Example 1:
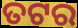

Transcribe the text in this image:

ତଟର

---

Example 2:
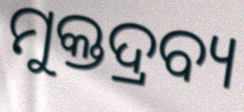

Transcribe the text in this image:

ମୁକ୍ତଦ୍ରବ୍ୟ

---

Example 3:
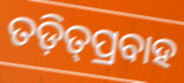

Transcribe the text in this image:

ତଡ଼ିତ୍‌ପ୍ରବାହ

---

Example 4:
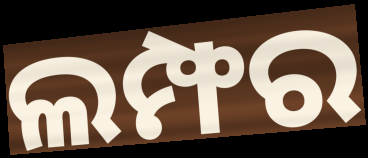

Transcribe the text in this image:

ଲମ୍ଫର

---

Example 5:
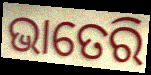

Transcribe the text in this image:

ଭାତେରି